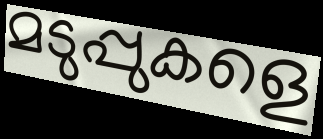
മടുപ്പുകളെ